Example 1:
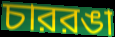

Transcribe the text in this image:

চাররঙা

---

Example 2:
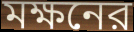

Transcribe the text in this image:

মক্ষনের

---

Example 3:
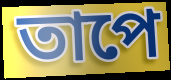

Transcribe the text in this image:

তাপে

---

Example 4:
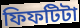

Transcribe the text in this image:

ফিফটিটা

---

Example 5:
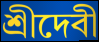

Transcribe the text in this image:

শ্রীদেবী